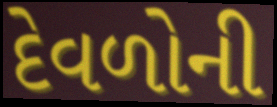
દેવળોની